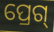
ପ୍ରେଗ୍